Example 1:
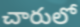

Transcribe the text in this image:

చారులో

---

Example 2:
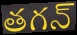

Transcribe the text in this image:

తగన్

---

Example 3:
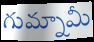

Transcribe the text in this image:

గుమ్నామీ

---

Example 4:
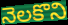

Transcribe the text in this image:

నెలకొని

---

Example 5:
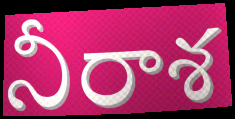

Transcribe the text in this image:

నీరాశ